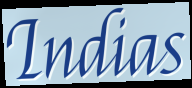
Indias